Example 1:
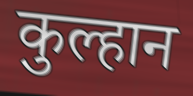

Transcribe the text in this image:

कुल्हान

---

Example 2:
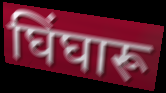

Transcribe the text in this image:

घिंघारू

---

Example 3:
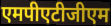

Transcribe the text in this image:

एमपीएटीजीएम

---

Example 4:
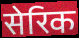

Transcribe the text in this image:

सेरिक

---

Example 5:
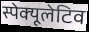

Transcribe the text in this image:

स्पेक्यूलेटिव